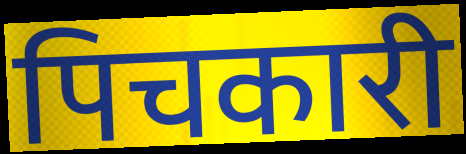
पिचकारी